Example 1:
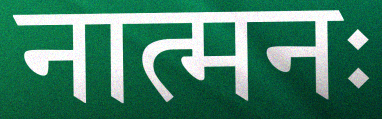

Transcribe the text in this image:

नात्मनः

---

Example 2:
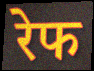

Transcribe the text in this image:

रेफ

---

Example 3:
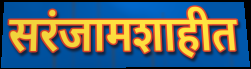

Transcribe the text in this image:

सरंजामशाहीत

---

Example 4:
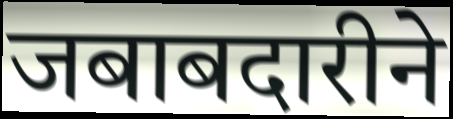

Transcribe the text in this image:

जबाबदारीने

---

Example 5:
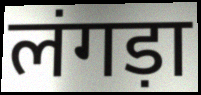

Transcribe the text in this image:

लंगड़ा